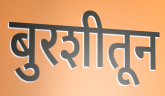
बुरशीतून